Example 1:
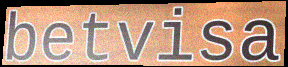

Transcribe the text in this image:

betvisa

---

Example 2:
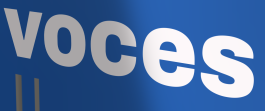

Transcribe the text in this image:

voces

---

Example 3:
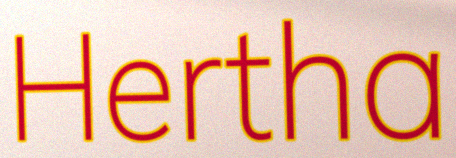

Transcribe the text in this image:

Hertha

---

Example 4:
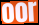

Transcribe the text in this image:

oor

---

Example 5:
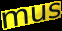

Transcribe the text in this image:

mus